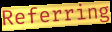
Referring